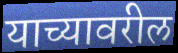
याच्यावरील